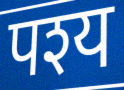
पश्य